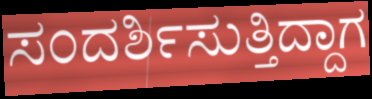
ಸಂದರ್ಶಿಸುತ್ತಿದ್ದಾಗ